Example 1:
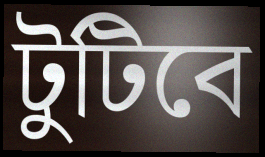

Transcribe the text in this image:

টুটিবে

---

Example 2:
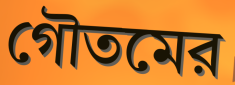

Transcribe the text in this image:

গৌতমের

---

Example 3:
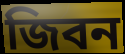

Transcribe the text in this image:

জিবন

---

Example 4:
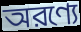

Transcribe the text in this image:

অরণ্যে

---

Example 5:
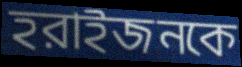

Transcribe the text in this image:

হরাইজনকে